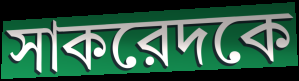
সাকরেদকে